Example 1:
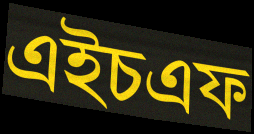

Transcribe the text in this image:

এইচএফ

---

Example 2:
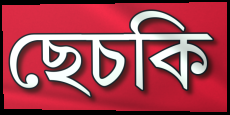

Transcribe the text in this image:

ছেচকি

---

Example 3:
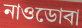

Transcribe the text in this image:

নাওডোবা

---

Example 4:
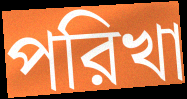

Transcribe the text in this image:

পরিখা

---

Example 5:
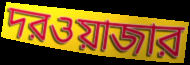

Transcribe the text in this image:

দরওয়াজার